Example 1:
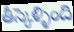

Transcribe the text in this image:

తీస్కెళ్ళింది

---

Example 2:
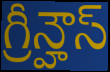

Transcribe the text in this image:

గ్రీన్హౌస్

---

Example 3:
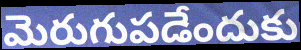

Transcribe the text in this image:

మెరుగుపడేందుకు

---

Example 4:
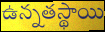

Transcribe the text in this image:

ఉన్నతస్థాయి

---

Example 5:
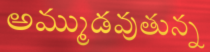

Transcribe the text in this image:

అమ్ముడవుతున్న